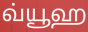
வ்யூஹ